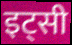
इट्सी